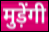
मुड़ेंगी